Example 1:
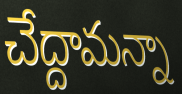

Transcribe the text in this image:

చేద్దామన్నా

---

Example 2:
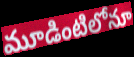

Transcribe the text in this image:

మూడింటిలోనూ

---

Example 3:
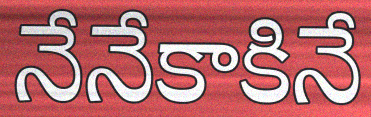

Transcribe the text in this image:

నేనేకాకినే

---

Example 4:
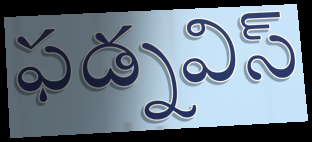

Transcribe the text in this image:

ఫడ్నవిస్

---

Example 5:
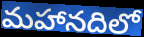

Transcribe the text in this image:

మహానదిలో